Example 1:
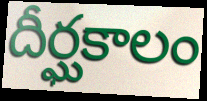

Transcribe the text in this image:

దీర్ఘకాలం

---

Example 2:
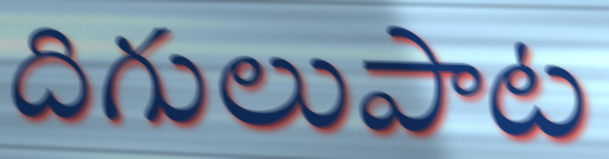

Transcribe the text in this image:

దిగులుపాట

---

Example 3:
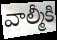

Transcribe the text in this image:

వాల్మీకి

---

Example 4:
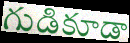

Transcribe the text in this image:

గుడికూడా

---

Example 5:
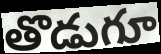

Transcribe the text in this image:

తొడుగూ